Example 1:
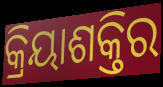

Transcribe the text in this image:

କ୍ରିୟାଶକ୍ତିର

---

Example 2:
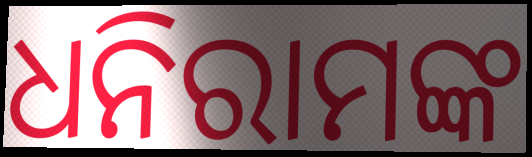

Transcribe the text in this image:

ଧନିରାମଙ୍କ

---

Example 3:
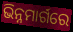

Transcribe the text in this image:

ଭିନ୍ନମାର୍ଗରେ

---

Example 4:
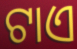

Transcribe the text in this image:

ଟାଏ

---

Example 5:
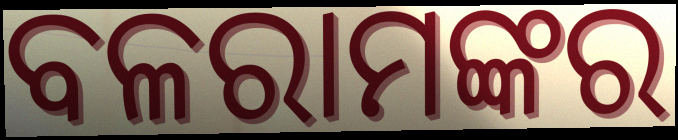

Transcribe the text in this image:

ବଳରାମଙ୍କର